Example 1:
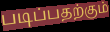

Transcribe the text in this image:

படிப்பதற்கும்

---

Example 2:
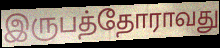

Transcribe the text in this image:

இருபத்தோராவது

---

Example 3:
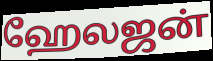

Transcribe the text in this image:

ஹேலஜன்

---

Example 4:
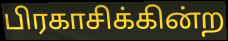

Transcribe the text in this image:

பிரகாசிக்கின்ற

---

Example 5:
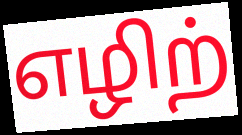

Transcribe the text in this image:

எழிற்